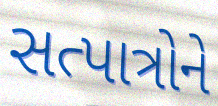
સત્પાત્રોને